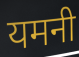
यमनी